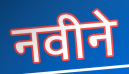
नवीने